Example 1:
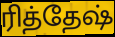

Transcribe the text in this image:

ரித்தேஷ்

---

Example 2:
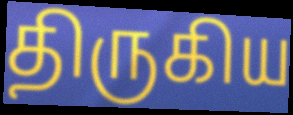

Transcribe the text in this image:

திருகிய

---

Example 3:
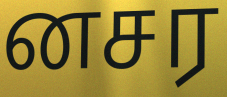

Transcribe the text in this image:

னசர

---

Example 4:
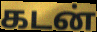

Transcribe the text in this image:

கடன்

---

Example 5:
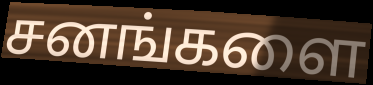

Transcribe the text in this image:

சனங்களை